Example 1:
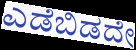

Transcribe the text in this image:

ಎಡೆಬಿಡದೇ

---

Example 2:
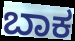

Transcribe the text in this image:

ಬಾಕ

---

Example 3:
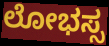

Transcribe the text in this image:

ಲೋಭಸ್ಸ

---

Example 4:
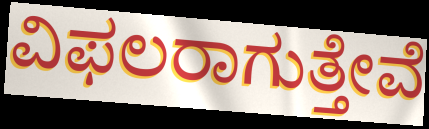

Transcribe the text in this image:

ವಿಫಲರಾಗುತ್ತೇವೆ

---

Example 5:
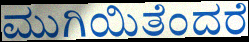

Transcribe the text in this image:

ಮುಗಿಯಿತೆಂದರೆ